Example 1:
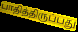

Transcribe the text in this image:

பாதித்திருப்பது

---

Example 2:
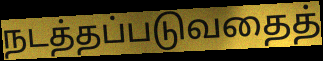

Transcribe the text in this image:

நடத்தப்படுவதைத்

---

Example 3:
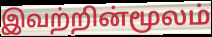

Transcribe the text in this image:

இவற்றின்மூலம்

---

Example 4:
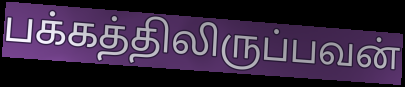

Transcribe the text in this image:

பக்கத்திலிருப்பவன்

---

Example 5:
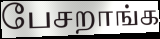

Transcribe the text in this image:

பேசறாங்க